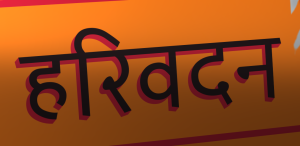
हरिवदन